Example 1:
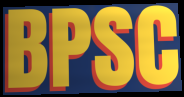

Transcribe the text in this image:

BPSC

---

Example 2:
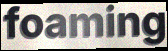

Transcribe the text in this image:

foaming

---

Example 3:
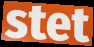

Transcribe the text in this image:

stet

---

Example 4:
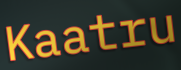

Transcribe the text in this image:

Kaatru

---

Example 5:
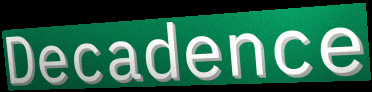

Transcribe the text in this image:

Decadence